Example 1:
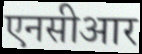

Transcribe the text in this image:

एनसीआर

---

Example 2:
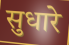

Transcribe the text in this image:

सुधारे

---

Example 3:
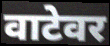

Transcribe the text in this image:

वाटेवर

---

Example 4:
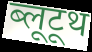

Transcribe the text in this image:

ब्लूटूथ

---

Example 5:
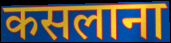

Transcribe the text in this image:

कसलाना